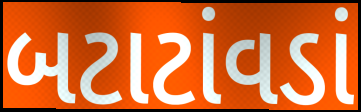
બટાટાંવડાં